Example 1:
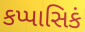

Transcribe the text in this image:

કપ્પાસિકં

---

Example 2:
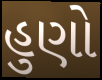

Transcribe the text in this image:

હુણો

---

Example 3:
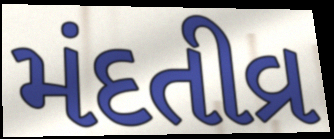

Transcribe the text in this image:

મંદતીવ્ર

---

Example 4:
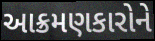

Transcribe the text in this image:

આક્રમણકારોને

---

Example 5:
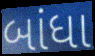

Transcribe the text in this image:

બાંધા